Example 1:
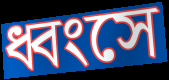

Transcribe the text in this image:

ধ্বংসে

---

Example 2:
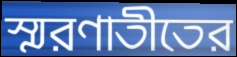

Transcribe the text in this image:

স্মরণাতীতের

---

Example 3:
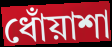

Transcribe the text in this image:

ধোঁয়াশা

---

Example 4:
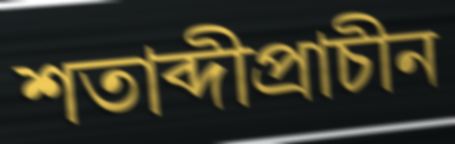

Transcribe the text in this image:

শতাব্দীপ্রাচীন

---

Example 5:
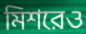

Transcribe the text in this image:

মিশরেও